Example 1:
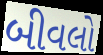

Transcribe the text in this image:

બીવલો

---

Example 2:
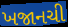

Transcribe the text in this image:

ખજાનચી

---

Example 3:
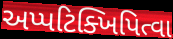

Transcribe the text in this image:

અપ્પટિક્ખિપિત્વા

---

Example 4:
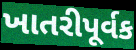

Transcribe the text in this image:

ખાતરીપૂર્વક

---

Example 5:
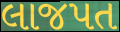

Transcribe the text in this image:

લાજપત